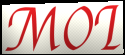
MOI